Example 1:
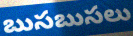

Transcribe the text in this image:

బుసబుసలు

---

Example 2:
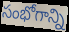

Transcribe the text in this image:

సంభోగాన్ని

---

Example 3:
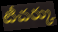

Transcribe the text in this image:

టీచర్కు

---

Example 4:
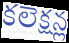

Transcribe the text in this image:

కలెక్షన్ల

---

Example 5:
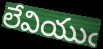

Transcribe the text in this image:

లేవియుఁ